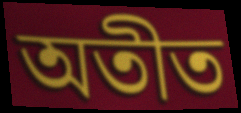
অতীত